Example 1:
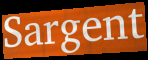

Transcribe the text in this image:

Sargent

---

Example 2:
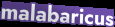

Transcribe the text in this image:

malabaricus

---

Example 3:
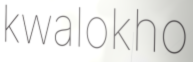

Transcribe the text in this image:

kwalokho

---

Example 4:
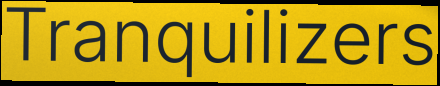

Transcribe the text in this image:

Tranquilizers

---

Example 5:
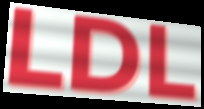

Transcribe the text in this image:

LDL